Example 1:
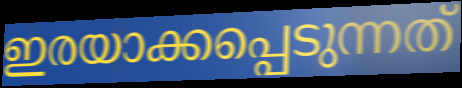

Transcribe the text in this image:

ഇരയാക്കപ്പെടുന്നത്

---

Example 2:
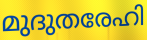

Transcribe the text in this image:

മുദുതരേഹി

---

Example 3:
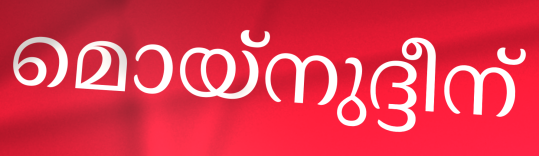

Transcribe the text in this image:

മൊയ്നുദ്ദീന്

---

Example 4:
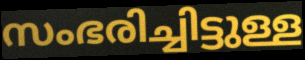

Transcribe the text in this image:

സംഭരിച്ചിട്ടുള്ള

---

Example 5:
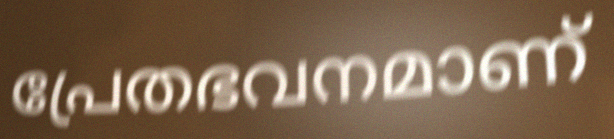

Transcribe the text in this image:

പ്രേതഭവനമാണ്